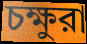
চক্ষুরা